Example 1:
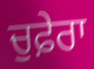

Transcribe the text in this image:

ਚੁਫ਼ੇਰਾ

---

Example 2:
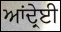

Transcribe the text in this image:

ਆਂਦ੍ਰੇਈ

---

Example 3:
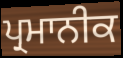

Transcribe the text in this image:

ਪ੍ਰਮਾਨੀਕ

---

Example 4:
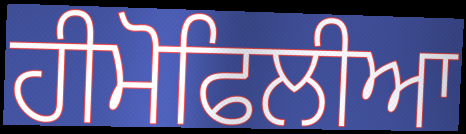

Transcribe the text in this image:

ਹੀਮੋਫਿਲੀਆ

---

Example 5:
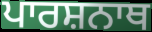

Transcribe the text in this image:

ਪਾਰਸ਼ਨਾਥ